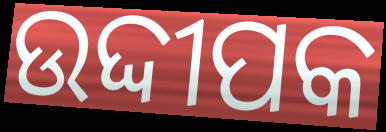
ଉଦ୍ଦୀପକ